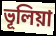
ভূলিয়া